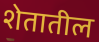
शेतातील